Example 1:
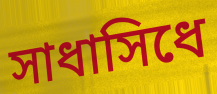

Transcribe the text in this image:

সাধাসিধে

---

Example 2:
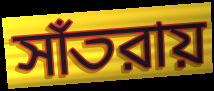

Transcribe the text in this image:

সাঁতরায়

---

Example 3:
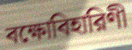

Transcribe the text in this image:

বক্ষোবিহারিণী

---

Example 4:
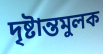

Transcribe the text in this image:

দৃষ্টান্তমুলক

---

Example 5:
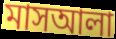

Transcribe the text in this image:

মাসআলা